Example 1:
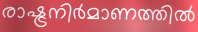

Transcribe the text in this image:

രാഷ്ട്രനിർമാണത്തിൽ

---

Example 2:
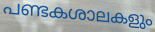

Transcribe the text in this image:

പണ്ടകശാലകളും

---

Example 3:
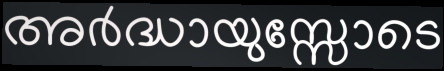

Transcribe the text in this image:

അർദ്ധായുസ്സോടെ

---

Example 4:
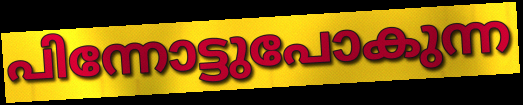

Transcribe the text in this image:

പിന്നോട്ടുപോകുന്ന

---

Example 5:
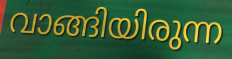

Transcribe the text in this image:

വാങ്ങിയിരുന്ന